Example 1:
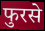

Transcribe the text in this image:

फुरसे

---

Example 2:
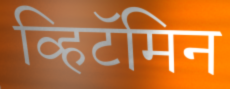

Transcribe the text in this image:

व्हिटॅमिन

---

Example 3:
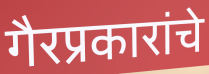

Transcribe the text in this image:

गैरप्रकारांचे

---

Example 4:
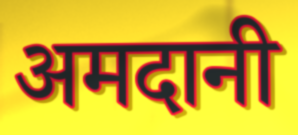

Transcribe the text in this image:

अमदानी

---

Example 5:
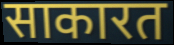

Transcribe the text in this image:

साकारत